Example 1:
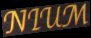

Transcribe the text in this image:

NIUM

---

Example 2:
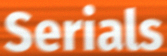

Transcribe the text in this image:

Serials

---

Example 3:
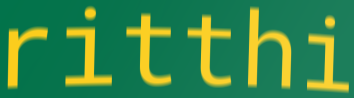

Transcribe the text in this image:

ritthi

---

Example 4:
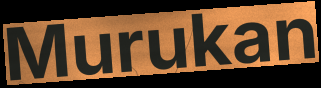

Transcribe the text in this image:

Murukan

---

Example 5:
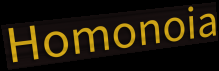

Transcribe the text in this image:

Homonoia